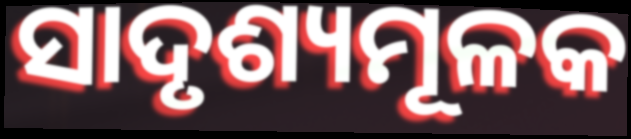
ସାଦୃଶ୍ୟମୂଳକ